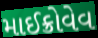
માઈક્રોવેવ